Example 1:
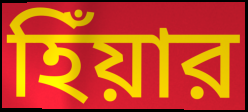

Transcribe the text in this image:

হিঁয়ার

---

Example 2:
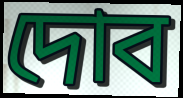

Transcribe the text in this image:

দোব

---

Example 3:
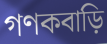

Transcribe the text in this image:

গণকবাড়ি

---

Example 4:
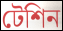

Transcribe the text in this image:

টেশিন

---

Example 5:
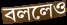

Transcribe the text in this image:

বললেও